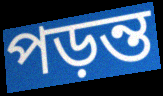
পড়ন্ত